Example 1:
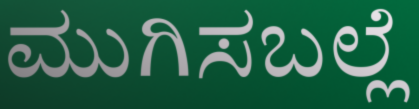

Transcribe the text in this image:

ಮುಗಿಸಬಲ್ಲೆ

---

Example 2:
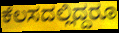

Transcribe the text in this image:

ಕೆಲಸದಲ್ಲಿದ್ದರೂ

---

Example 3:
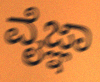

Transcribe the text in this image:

ವೈಜ್ಞಾ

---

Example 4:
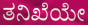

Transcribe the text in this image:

ತನಿಖೆಯೇ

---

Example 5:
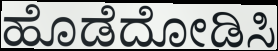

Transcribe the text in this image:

ಹೊಡೆದೋಡಿಸಿ